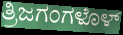
ತ್ರಿಜಗಂಗಳೊಳ್